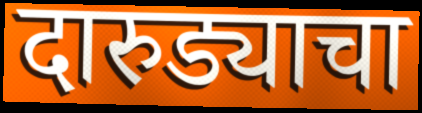
दारुड्याचा